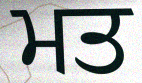
ਮਤ